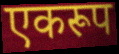
एकरूप